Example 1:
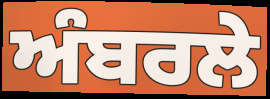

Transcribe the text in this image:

ਅੰਬਰਲੇ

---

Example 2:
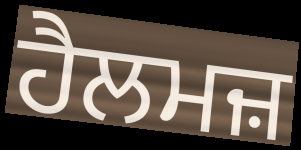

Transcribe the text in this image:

ਹੈਲਮਜ਼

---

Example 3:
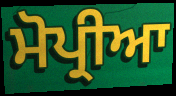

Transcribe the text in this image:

ਮੋਪ੍ਰੀਆ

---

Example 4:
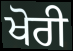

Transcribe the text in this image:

ਖੋਰੀ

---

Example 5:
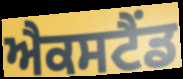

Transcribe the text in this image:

ਐਕਸਟੈਂਡ